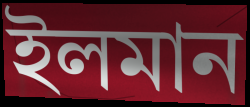
ইলমান